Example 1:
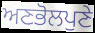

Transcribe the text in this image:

ਅਣਭੋਲਪੁਣੇ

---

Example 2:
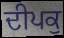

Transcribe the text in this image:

ਦੀਪਕੁ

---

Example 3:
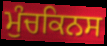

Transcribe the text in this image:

ਮੁੰਚਕਿਨਸ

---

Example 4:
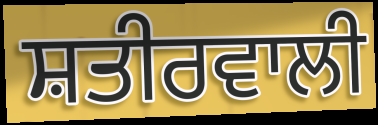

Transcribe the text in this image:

ਸ਼ਤੀਰਵਾਲੀ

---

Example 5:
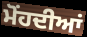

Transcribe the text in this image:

ਮੋਂਹਦੀਆਂ